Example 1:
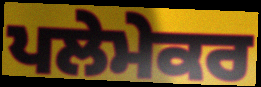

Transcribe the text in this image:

ਪਲੇਮੇਕਰ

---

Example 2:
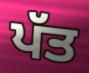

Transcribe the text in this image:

ਪੱਤ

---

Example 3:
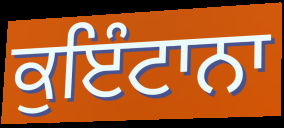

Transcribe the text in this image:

ਕੁਇੰਟਾਨਾ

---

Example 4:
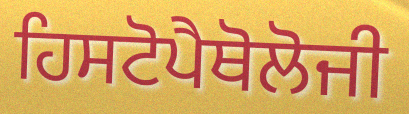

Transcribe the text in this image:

ਹਿਸਟੋਪੈਥੋਲੋਜੀ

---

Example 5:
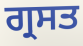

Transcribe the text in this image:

ਗ੍ਰਸਤ